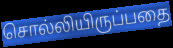
சொல்லியிருப்பதை